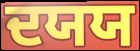
ਦਯਯ